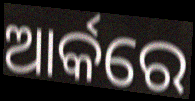
ଆର୍କରେ